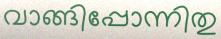
വാങ്ങിപ്പോന്നിതു